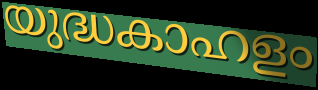
യുദ്ധകാഹളം